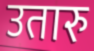
उतारु